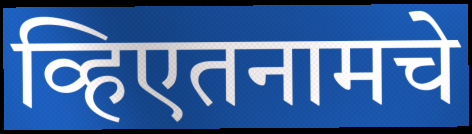
व्हिएतनामचे